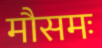
मौसमः